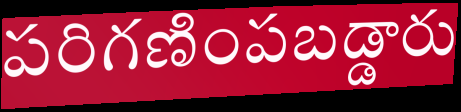
పరిగణింపబడ్డారు